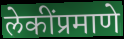
लेकींप्रमाणे